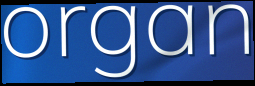
organ